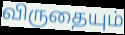
விருதையும்